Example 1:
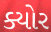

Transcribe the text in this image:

ક્યોર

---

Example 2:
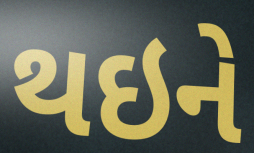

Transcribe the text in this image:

થઇને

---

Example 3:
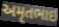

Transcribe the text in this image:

અમૃતભાઇ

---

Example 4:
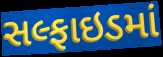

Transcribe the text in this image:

સલ્ફાઇડમાં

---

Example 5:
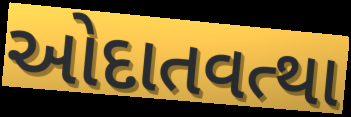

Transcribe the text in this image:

ઓદાતવત્થા